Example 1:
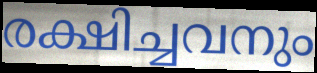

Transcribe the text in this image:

രക്ഷിച്ചവനും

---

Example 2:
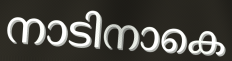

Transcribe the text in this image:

നാടിനാകെ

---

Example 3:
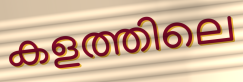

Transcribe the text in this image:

കളത്തിലെ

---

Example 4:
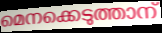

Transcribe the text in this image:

മെനക്കെടുത്താന്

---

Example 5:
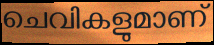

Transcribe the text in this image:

ചെവികളുമാണ്